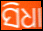
ସିଧା